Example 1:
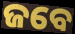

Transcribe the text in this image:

ଜବେ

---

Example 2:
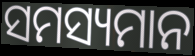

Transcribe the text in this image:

ସମସ୍ୟମାନ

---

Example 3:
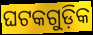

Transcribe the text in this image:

ଘଟକଗୁଡ଼ିକ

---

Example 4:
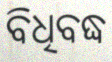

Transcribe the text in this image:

ବିଧିବଦ୍ଧ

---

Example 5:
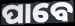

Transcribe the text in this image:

ପାବେ